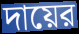
দায়ের